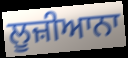
ਲੂਜ਼ੀਆਨਾ